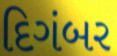
દિગંબર